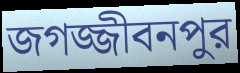
জগজ্জীবনপুর